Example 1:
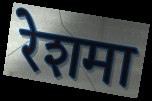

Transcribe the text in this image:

रेशमा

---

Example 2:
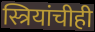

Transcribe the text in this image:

स्त्रियांचीही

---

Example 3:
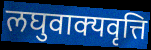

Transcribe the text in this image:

लघुवाक्यवृत्ति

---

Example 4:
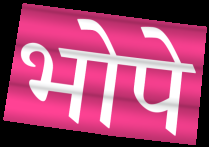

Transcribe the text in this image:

भोपे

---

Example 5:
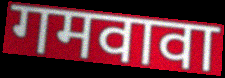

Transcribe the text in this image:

गमवावा